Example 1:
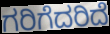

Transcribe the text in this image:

ಗರಿಗೆದರಿದೆ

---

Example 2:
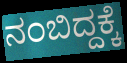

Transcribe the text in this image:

ನಂಬಿದ್ದಕ್ಕೆ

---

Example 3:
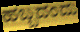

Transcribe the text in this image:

ಹಬ್ಬದಂದು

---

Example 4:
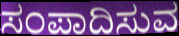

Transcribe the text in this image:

ಸಂಪಾದಿಸುವ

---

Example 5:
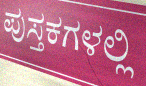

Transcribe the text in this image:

ಪುಸ್ತಕಗಳಲ್ಲಿ